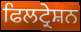
ਫਿਲਟ੍ਰੇਸ਼ਨ